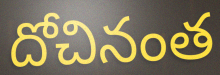
దోచినంత